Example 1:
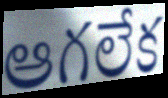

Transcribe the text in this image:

ఆగలేక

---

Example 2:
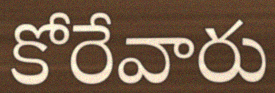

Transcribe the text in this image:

కోరేవారు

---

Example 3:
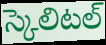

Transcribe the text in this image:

స్కెలిటల్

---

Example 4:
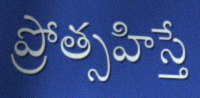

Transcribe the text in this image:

ప్రోత్సహిస్తే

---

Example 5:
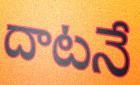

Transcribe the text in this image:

దాటనే